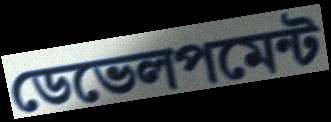
ডেভেলপমেন্ট